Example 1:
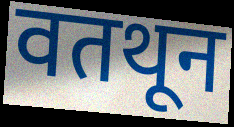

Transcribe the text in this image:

वतथून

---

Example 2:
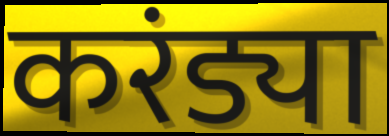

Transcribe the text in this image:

करंड्या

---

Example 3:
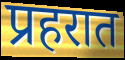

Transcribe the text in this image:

प्रहरात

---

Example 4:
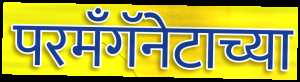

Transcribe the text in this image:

परमँगॅनेटाच्या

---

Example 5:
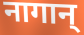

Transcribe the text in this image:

नागान्